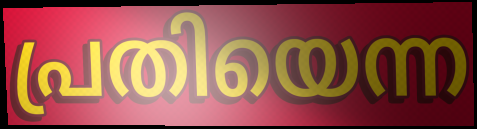
പ്രതിയെന്ന